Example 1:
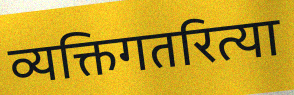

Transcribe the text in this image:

व्यक्तिगतरित्या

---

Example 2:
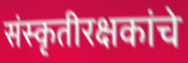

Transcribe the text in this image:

संस्कृतीरक्षकांचे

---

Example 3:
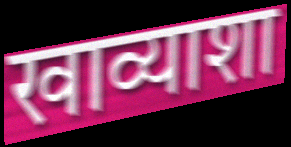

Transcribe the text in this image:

खाव्याशा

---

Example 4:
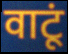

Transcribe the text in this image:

वाटूं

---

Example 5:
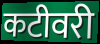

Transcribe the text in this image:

कटीवरी